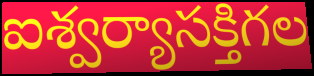
ఐశ్వర్యాసక్తిగల